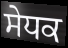
ਸੇਧਕ